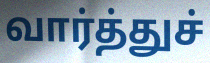
வார்த்துச்